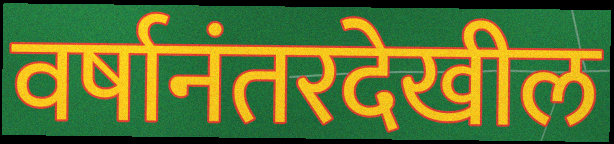
वर्षानंतरदेखील